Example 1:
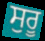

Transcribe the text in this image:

ਸੁਰੂ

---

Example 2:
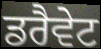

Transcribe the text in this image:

ਡਰੈਵੇਟ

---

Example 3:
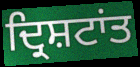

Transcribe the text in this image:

ਦ੍ਰਿਸ਼ਟਾਂਤ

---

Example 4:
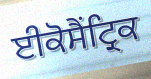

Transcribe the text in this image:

ਈਕੋਸੈਂਟ੍ਰਿਕ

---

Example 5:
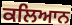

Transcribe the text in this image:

ਕਲਿਆਨ